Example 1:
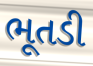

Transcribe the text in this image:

ભૂતડી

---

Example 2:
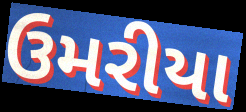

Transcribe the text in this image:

ઉમરીયા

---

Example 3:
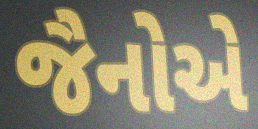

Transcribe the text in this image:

જૈનોએ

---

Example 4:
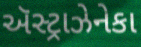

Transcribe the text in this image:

ઍસ્ટ્રાઝેનેકા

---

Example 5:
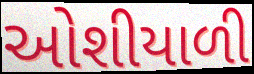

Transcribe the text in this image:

ઓશીયાળી